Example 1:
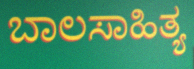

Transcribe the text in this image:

ಬಾಲಸಾಹಿತ್ಯ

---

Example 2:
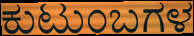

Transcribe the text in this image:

ಕುಟುಂಬಗಳ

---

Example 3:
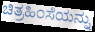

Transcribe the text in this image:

ಚಿತ್ರಹಿಂಸೆಯನ್ನು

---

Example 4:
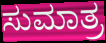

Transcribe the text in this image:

ಸುಮಾತ್ರ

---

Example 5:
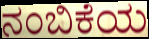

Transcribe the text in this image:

ನಂಬಿಕೆಯ